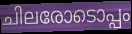
ചിലരോടൊപ്പം